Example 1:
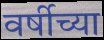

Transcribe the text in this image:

वर्षीच्या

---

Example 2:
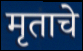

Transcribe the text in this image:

मृताचे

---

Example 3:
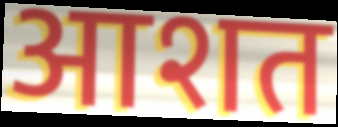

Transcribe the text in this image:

आशत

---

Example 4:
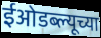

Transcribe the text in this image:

ईओडब्ल्यूच्या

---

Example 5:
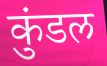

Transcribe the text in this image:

कुंडल